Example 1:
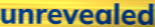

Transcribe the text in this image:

unrevealed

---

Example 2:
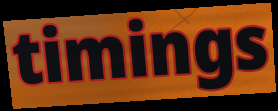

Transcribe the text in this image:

timings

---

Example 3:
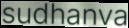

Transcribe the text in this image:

sudhanva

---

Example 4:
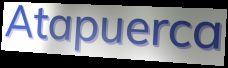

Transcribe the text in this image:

Atapuerca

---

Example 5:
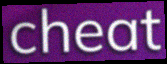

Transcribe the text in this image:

cheat